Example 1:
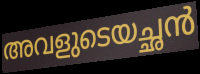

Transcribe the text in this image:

അവളുടെയച്ഛൻ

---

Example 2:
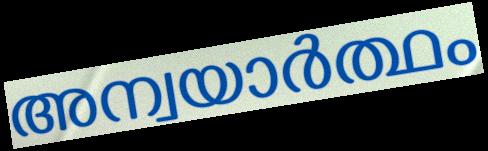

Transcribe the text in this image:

അന്വയാർത്ഥം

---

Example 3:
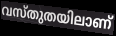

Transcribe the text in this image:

വസ്തുതയിലാണ്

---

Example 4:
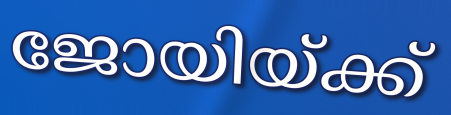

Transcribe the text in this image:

ജോയിയ്ക്ക്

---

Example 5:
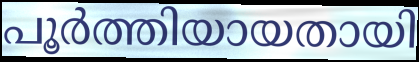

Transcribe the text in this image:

പൂർത്തിയായതായി